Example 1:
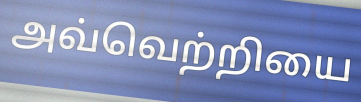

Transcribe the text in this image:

அவ்வெற்றியை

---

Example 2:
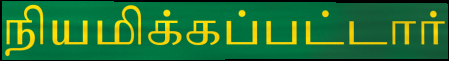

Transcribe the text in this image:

நியமிக்கப்பட்டார்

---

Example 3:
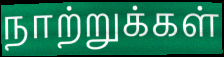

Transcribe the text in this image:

நாற்றுக்கள்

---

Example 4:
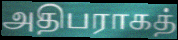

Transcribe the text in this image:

அதிபராகத்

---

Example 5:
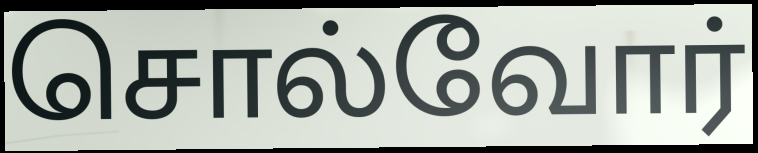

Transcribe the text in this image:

சொல்வோர்